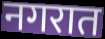
नगरात